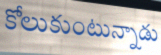
కోలుకుంటున్నాడు